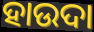
ହାଉଦା